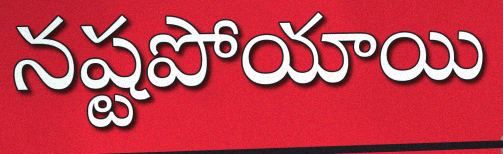
నష్టపోయాయి